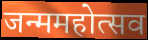
जन्ममहोत्सव